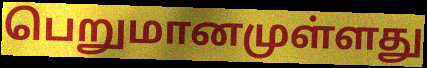
பெறுமானமுள்ளது